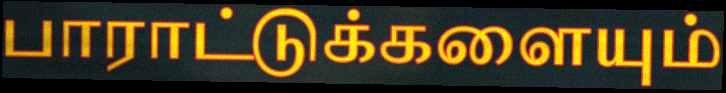
பாராட்டுக்களையும்